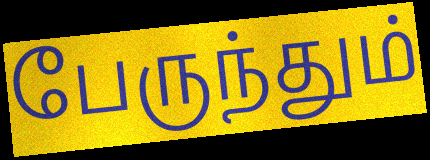
பேருந்தும்